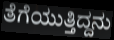
ತೆಗೆಯುತ್ತಿದ್ದನು